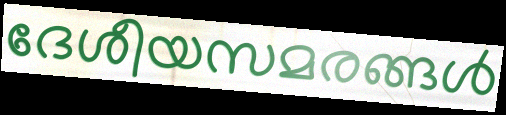
ദേശീയസമരങ്ങൾ